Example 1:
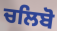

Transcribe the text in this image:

ਚਲਿਬੋ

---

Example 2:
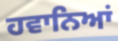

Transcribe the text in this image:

ਹਵਾਨਿਆਂ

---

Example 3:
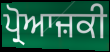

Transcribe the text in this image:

ਪ੍ਰੋਆਜ਼ਕੀ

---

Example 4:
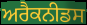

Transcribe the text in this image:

ਅਰੈਕਨੀਡਸ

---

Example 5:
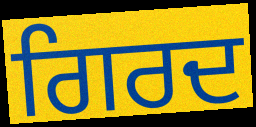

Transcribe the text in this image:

ਗਿਰਦ